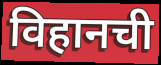
विहानची